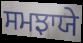
ਸਮਝਾਯੇ